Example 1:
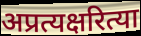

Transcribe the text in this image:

अप्रत्यक्षरित्या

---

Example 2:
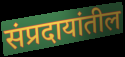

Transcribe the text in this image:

संप्रदायांतील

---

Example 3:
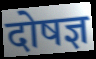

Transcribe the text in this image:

दोषज्ञ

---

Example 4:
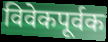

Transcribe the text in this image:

विवेकपूर्वक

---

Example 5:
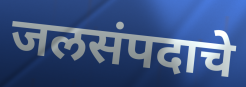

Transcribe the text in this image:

जलसंपदाचे